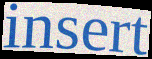
insert